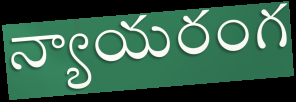
న్యాయరంగ